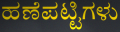
ಹಣೆಪಟ್ಟಿಗಳು